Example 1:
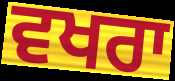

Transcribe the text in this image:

ਵਖਰਾ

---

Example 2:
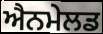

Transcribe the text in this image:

ਐਨਮੇਲਡ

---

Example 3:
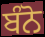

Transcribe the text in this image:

ਬੰਨੋ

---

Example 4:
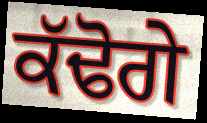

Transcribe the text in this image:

ਕੱਢੋਗੇ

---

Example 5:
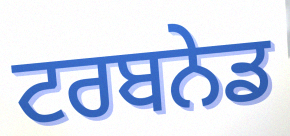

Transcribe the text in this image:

ਟਰਬਨੇਡ